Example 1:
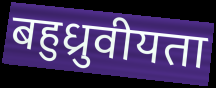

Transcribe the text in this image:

बहुध्रुवीयता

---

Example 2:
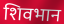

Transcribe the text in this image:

शिवभान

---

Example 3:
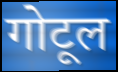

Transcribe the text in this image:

गोटूल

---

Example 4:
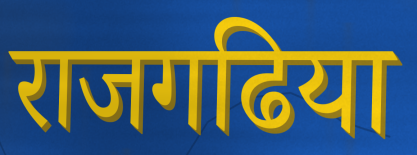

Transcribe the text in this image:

राजगढिया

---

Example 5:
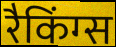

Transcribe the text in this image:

रैकिंग्स